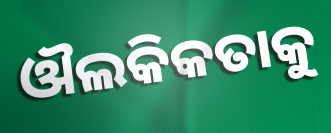
ଔଲକିକତାକୁ